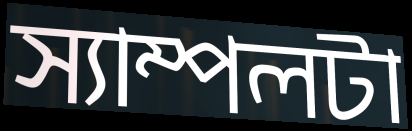
স্যাম্পলটা